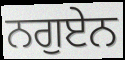
ਨਗੁਏਨ